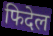
फिदेल